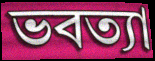
ভবত্যা